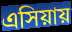
এসিয়ায়